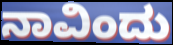
ನಾವಿಂದು